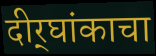
दीर्घांकाचा